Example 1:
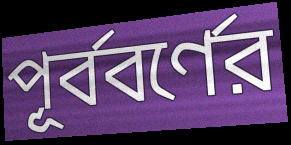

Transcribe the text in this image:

পূর্ববর্ণের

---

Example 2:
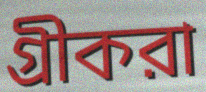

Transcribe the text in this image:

গ্রীকরা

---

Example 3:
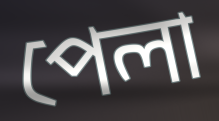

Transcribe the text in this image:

পেলা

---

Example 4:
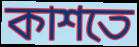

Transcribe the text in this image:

কাশতে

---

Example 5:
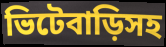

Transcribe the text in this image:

ভিটেবাড়িসহ